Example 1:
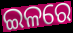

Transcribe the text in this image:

ଇଳରେ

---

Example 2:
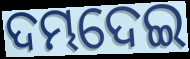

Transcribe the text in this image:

ଦମ୍ଭଦେଇ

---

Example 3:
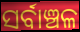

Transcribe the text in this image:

ସର୍ବାଞ୍ଚଳ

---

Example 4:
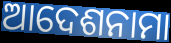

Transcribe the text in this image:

ଆଦେଶନାମା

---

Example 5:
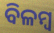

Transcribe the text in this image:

ବିଳମ୍ଵ